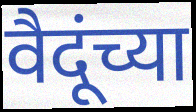
वैदूंच्या